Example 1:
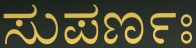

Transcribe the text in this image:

ಸುಪರ್ಣಃ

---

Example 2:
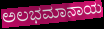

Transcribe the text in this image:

ಅಲಭಮಾನಾಯ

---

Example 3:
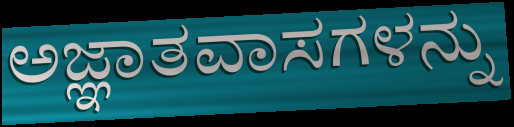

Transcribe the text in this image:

ಅಜ್ಞಾತವಾಸಗಳನ್ನು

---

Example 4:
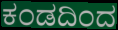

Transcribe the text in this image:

ಕಂಡದಿಂದ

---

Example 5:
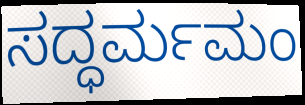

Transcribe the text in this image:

ಸದ್ಧರ್ಮಮಂ